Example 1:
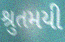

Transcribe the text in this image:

શ્રુતમયી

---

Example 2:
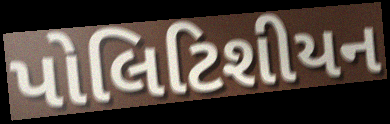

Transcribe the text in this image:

પોલિટિશીયન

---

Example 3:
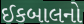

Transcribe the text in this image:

ઈકબાલનો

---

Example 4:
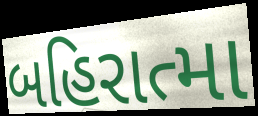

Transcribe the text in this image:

બહિરાત્મા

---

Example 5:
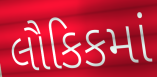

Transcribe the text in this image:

લૌકિકમાં